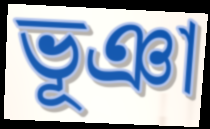
ভূঞা